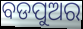
ବଡପୁଅର